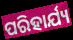
ପରିହାର୍ଯ୍ୟ